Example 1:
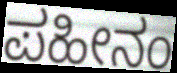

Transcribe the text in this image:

ಪಹೀನಂ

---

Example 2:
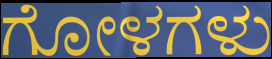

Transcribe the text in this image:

ಗೋಳಗಳು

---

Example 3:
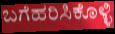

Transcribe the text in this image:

ಬಗೆಹರಿಸಿಕೊಳ್ಳಿ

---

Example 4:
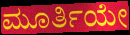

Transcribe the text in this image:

ಮೂರ್ತಿಯೇ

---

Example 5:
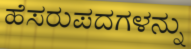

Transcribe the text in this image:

ಹೆಸರುಪದಗಳನ್ನು